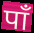
पाँ